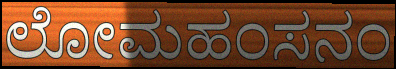
ಲೋಮಹಂಸನಂ